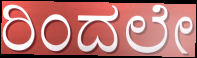
ರಿಂದಲೇ